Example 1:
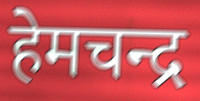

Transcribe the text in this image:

हेमचन्द्र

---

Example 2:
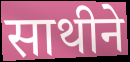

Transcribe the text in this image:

साथीने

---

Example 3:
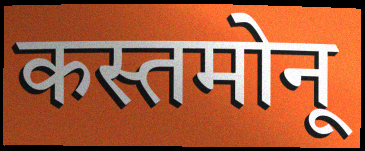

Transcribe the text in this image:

कस्तमोनू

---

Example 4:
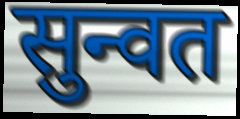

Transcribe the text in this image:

सुन्वत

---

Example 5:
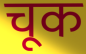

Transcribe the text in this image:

चूक